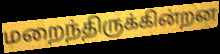
மறைந்திருக்கின்றன